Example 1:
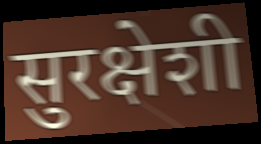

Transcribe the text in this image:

सुरक्षेशी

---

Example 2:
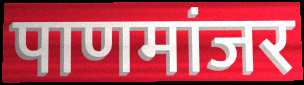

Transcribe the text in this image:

पाणमांजर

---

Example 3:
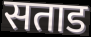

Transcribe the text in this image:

सताड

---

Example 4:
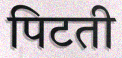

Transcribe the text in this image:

पिटती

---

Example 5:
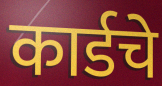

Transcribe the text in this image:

कार्डचे